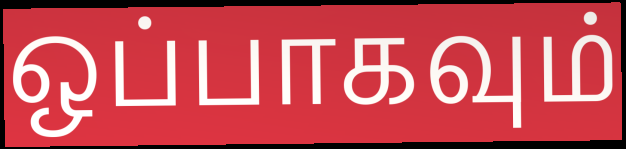
ஒப்பாகவும்